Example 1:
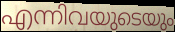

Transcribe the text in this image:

എന്നിവയുടെയും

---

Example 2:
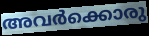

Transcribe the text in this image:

അവർക്കൊരു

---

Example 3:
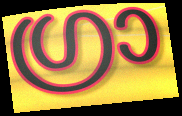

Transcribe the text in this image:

ഗ്രാ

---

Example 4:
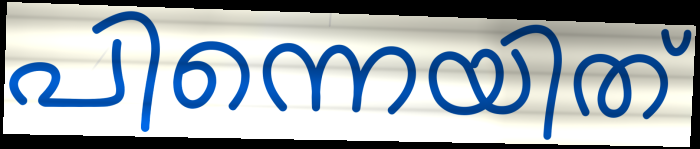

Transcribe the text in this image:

പിന്നെയിത്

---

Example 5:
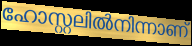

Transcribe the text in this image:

ഹോസ്റ്റലിൽനിന്നാണ്